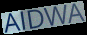
AIDWA